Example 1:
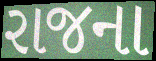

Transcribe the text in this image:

રાજના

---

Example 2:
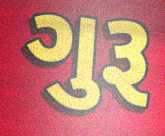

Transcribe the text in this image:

ગુરૂ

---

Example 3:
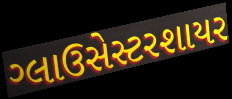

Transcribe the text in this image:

ગ્લાઉસેસ્ટરશાયર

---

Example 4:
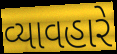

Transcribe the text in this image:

વ્યાવહારે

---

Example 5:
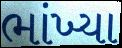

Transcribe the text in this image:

ભાંખ્યા